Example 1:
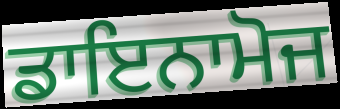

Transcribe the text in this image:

ਡਾਇਨਾਮੋਜ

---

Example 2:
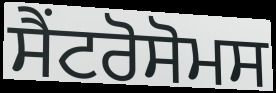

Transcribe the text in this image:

ਸੈਂਟਰੋਸੋਮਸ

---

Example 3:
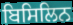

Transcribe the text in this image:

ਬਿਸਿਲਿਨ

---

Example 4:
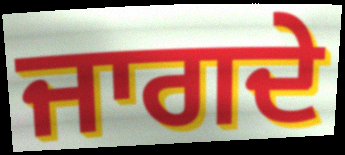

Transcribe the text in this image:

ਜਾਗਦੇ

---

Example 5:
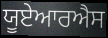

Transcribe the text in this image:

ਯੂਏਆਰਐਸ